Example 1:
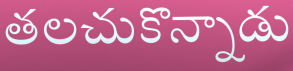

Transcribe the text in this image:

తలచుకొన్నాడు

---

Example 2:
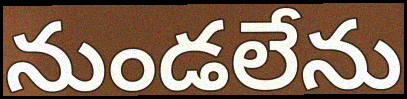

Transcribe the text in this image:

నుండలేను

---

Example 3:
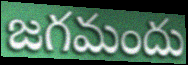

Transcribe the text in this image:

జగమందు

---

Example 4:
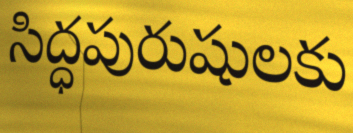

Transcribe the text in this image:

సిద్ధపురుషులకు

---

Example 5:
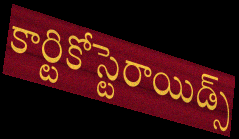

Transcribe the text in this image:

కార్టికోస్టెరాయిడ్స్